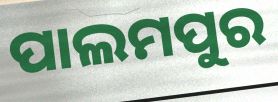
ପାଲମପୁର